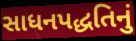
સાધનપદ્ધતિનું